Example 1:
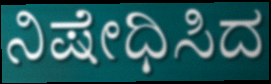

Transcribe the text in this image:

ನಿಷೇಧಿಸಿದ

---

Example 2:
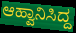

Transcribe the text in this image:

ಆಹ್ವಾನಿಸಿದ್ದ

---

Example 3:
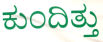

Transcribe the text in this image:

ಕುಂದಿತ್ತು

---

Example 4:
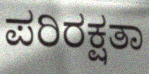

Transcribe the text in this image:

ಪರಿರಕ್ಷತಾ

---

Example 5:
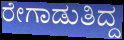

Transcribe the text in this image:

ರೇಗಾಡುತಿದ್ದ